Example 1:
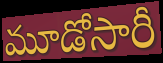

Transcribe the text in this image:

మూడోసారీ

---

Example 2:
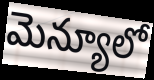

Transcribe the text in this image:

మెన్యూలో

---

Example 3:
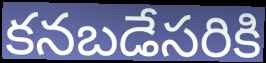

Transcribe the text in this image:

కనబడేసరికి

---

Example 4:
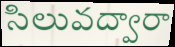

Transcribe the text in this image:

సిలువద్వారా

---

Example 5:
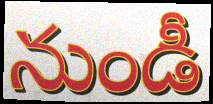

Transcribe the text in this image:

నుండీ